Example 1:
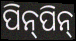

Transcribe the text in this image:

ପିନ୍‍ପିନ୍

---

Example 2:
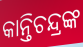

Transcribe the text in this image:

କାନ୍ତିଚନ୍ଦ୍ରଙ୍କ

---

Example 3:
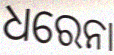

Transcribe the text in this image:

ଧରେନା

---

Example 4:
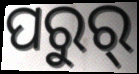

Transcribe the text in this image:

ପରୁର୍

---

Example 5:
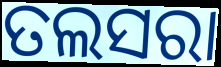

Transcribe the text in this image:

ତଲସରା